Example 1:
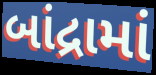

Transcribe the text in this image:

બાંદ્રામાં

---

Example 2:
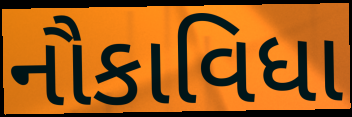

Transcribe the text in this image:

નૌકાવિધા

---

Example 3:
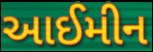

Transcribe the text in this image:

આઈમીન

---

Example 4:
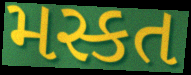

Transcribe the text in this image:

મસ્કત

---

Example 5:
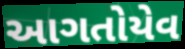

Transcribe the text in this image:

આગતોયેવ